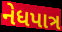
નેધપાત્ર